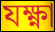
যক্ষ্ণা